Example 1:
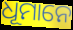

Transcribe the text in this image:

ଧୂମାନେ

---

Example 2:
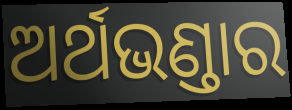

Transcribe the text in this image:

ଅର୍ଥଭଣ୍ଡାର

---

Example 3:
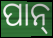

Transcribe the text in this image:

ପାନ୍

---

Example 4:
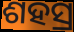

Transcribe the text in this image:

ଶହସ୍ର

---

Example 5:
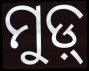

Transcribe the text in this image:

ମୁଡ଼୍